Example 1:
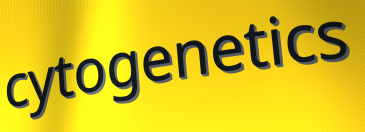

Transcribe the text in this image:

cytogenetics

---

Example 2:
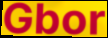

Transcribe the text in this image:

Gbor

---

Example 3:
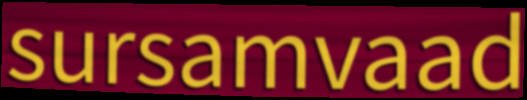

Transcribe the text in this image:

sursamvaad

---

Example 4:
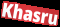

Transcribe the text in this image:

Khasru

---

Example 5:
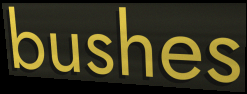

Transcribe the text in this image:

bushes